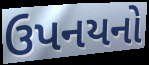
ઉપનયનો